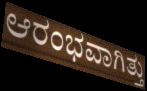
ಆರಂಭವಾಗಿತ್ತು